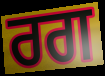
ਰਗ